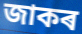
জাকৰ